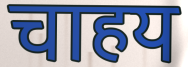
चाहय